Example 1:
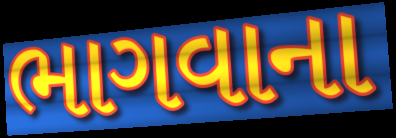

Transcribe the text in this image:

ભાગવાના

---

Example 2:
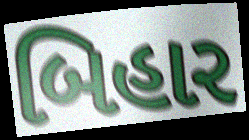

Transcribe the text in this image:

બિહાર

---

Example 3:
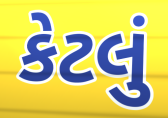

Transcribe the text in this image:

કેટલું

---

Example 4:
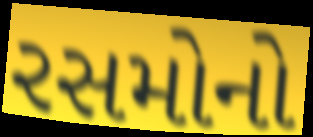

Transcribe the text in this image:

રસમોનો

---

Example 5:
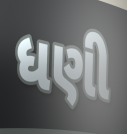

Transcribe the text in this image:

ધણી